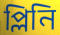
প্লিনি